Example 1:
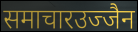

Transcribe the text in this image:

समाचारउज्जैन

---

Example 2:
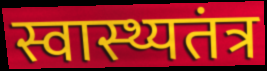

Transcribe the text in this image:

स्वास्थ्यतंत्र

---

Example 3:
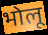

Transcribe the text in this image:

भोलू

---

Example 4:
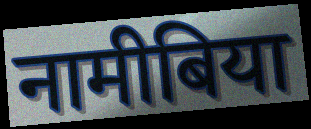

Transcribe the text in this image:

नामीबिया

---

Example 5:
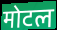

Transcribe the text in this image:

मोटल